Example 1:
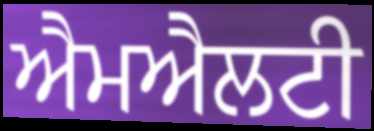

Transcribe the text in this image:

ਐਮਐਲਟੀ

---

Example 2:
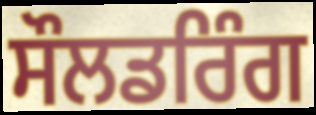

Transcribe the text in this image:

ਸੌਲਡਰਿੰਗ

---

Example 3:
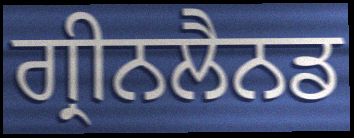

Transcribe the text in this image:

ਗ੍ਰੀਨਲੈਨਡ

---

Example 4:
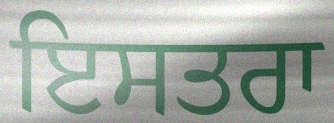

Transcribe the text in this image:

ਇਸਤਰਾ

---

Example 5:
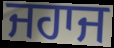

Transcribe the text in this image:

ਜਹਾਜ